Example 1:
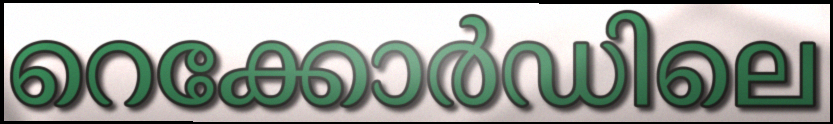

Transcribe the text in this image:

റെക്കോർഡിലെ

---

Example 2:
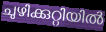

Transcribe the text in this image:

ചുഴിക്കുറ്റിയിൽ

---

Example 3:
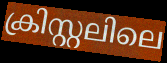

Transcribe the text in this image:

ക്രിസ്റ്റലിലെ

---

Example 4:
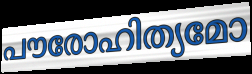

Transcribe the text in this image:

പൗരോഹിത്യമോ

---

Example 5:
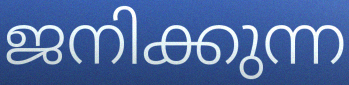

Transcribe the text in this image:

ജനിക്കുന്ന